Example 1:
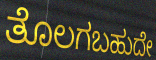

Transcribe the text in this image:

ತೊಲಗಬಹುದೇ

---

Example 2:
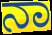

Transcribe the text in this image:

ನಾ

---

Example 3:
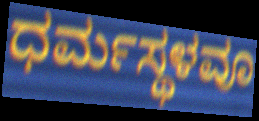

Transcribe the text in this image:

ಧರ್ಮಸ್ಥಳವೂ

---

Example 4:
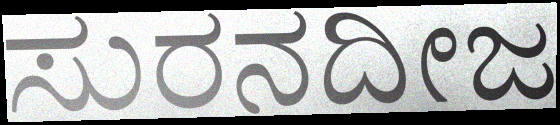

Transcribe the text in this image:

ಸುರನದೀಜ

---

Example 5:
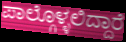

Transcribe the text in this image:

ಪಾಲ್ಗೊಳ್ಳಲಿದ್ದಾರೆ